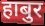
हाबुर